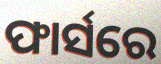
ଫାର୍ସରେ